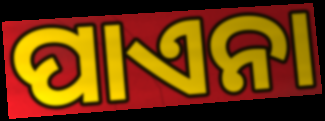
ପାଏନା